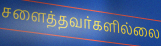
சளைத்தவர்களில்லை